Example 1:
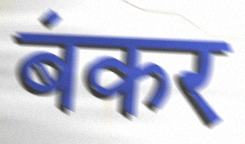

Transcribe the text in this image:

बंकर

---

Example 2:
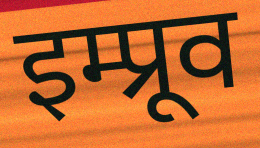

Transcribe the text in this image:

इम्प्रूव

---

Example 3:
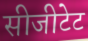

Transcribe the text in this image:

सीजीटेट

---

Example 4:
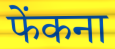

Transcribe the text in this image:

फेंकना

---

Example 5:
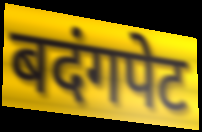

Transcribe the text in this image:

बदंगपेट